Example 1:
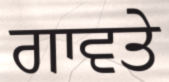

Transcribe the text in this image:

ਗਾਵਤੇ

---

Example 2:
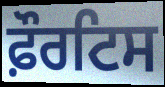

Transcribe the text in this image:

ਫ਼ੌਰਟਿਸ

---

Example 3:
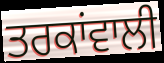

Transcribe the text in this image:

ਤਰਕਾਂਵਾਲੀ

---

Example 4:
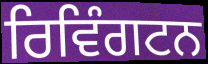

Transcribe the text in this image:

ਰਿਵਿੰਗਟਨ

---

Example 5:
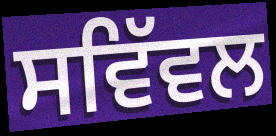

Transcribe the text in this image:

ਸਵਿੱਵਲ